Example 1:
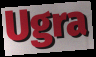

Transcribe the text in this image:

Ugra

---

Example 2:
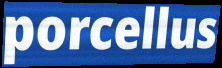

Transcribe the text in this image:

porcellus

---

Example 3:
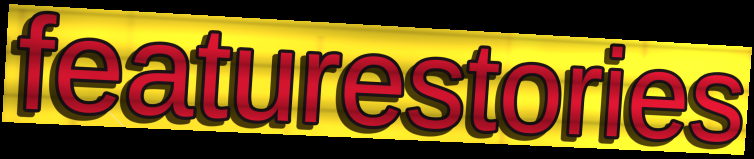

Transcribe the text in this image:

featurestories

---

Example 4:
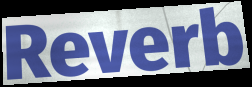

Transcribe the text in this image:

Reverb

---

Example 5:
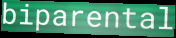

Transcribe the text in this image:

biparental